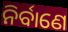
ନିର୍ବାଣେ